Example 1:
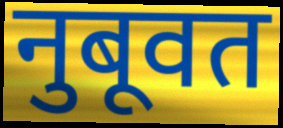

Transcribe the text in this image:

नुबूवत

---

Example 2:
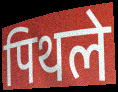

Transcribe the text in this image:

पिथले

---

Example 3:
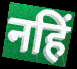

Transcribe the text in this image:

नहिं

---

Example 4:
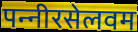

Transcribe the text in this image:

पन्नीरसेलवम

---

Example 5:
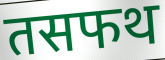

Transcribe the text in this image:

तसफथ